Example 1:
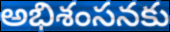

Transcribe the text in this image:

అభిశంసనకు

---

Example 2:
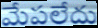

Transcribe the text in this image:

మేపలేదు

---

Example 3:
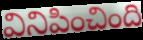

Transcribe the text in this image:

వినిపించింది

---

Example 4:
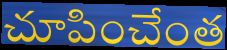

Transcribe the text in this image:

చూపించేంత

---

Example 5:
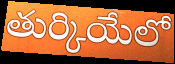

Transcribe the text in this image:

తుర్కియేలో